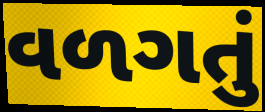
વળગતું